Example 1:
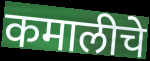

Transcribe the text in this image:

कमालीचे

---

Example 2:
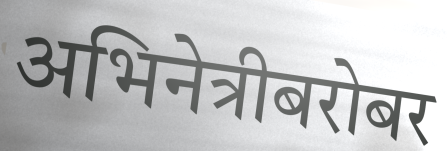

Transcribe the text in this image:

अभिनेत्रीबरोबर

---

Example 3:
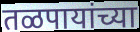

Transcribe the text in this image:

तळपायांच्या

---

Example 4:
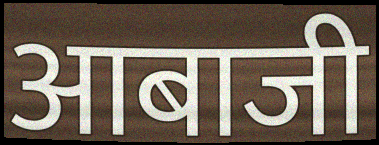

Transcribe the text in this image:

आबाजी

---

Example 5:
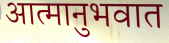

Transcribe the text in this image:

आत्मानुभवात